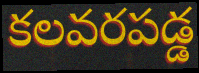
కలవరపడ్డ